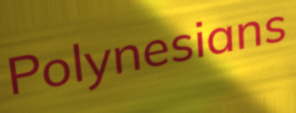
Polynesians